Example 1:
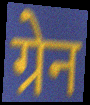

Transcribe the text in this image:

ग्रेन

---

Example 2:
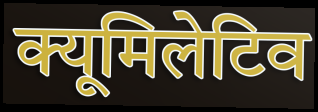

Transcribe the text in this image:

क्यूमिलेटिव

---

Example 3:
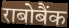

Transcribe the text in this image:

राबोबैंक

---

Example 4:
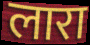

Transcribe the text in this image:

लारा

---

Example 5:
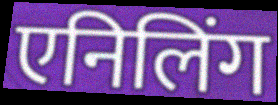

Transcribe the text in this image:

एनिलिंग